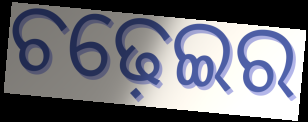
ଚଢ଼େଇର